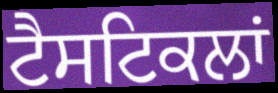
ਟੈਸਟਿਕਲਾਂ